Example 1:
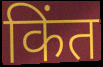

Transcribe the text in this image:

किंत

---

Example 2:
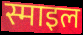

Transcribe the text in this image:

स्माइल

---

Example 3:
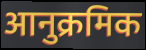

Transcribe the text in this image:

आनुक्रमिक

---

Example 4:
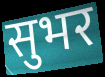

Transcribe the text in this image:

सुभर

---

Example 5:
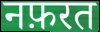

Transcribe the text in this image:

नफ़रत